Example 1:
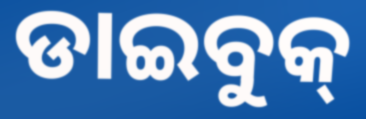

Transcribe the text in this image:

ଡାଇବୁକ୍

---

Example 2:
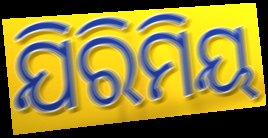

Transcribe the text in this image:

ଯିରିମିୟ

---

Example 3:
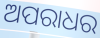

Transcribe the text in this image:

ଅପରାଧର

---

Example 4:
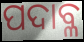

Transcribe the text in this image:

ପଦାବ୍ଳ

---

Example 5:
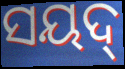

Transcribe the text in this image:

ସୟଦ୍